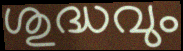
ശുദ്ധവും